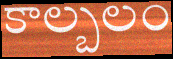
కాల్బలం